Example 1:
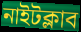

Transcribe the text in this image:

নাইটক্লাব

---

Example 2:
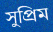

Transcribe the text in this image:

সুপ্রিম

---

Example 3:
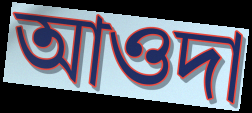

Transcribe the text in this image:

আওদা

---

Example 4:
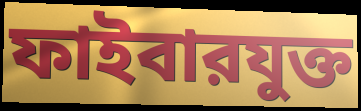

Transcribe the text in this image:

ফাইবারযুক্ত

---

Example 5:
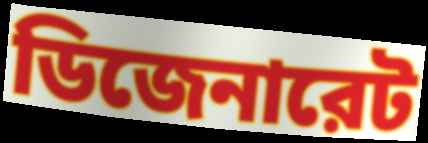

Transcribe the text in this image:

ডিজেনারেট